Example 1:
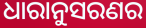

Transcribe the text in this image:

ଧାରାନୁସରଣର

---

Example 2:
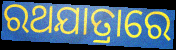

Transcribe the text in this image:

ରଥଯାତ୍ରାରେ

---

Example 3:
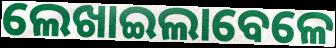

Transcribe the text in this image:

ଲେଖାଇଲାବେଳେ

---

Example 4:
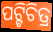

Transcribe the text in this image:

ପଟ୍ଟିଚିତ୍ର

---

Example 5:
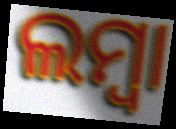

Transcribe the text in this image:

ଲମ୍ବା